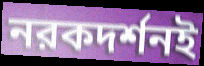
নরকদর্শনই